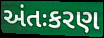
અંતઃકરણ